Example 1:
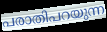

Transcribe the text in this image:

പരാതിപറയുന്ന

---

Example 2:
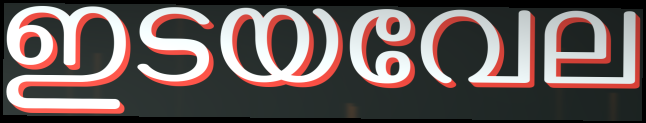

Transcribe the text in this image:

ഇടയവേല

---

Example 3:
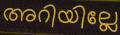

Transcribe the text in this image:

അറിയില്ലേ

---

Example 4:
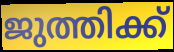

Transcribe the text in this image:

ജുത്തിക്ക്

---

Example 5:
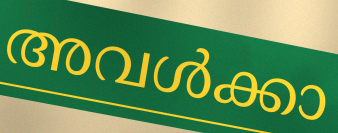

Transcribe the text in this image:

അവൾക്കാ